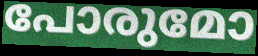
പോരുമോ